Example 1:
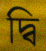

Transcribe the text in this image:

দ্বি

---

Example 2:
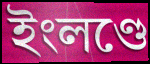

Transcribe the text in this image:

ইংলণ্ডে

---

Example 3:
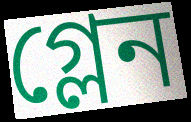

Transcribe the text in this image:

গ্লেন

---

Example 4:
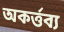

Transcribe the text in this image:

অকর্ত্তব্য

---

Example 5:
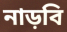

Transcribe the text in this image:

নাড়বি